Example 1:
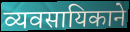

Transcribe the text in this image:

व्यवसायिकाने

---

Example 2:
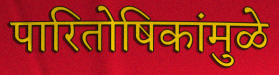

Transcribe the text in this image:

पारितोषिकांमुळे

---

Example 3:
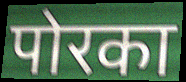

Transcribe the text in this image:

पोरका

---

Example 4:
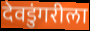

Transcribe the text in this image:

देवडुंगरीला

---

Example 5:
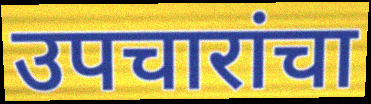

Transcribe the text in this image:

उपचारांचा